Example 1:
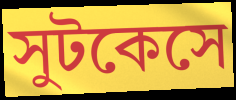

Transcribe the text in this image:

সুটকেসে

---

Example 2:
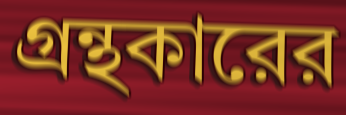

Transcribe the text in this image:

গ্রন্থকারের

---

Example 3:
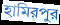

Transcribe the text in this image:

হামিরপুর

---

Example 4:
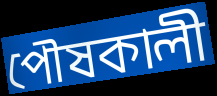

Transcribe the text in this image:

পৌষকালী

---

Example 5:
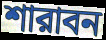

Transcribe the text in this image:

শারাবন